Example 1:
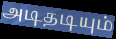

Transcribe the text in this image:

அடிதடியும்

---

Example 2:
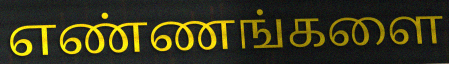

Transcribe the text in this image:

எண்ணங்களை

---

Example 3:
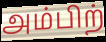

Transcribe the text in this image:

அம்பிற்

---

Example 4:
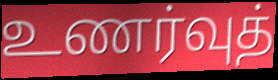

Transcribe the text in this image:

உணர்வுத்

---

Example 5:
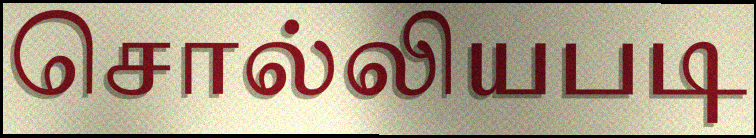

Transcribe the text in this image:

சொல்லியபடி